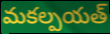
మకల్పయత్